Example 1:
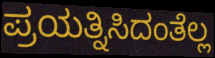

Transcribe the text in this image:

ಪ್ರಯತ್ನಿಸಿದಂತೆಲ್ಲ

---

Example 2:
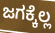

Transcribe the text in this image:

ಜಗಕ್ಕೆಲ್ಲ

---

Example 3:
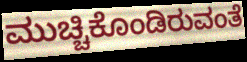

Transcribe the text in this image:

ಮುಚ್ಚಿಕೊಂಡಿರುವಂತೆ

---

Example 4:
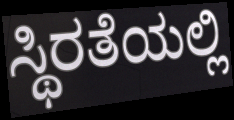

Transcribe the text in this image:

ಸ್ಥಿರತೆಯಲ್ಲಿ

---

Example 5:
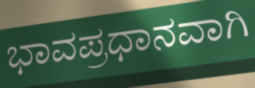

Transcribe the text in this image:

ಭಾವಪ್ರಧಾನವಾಗಿ